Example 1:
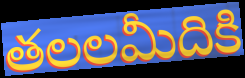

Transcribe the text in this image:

తలలమీదికి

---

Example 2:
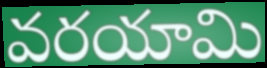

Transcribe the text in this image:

వరయామి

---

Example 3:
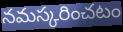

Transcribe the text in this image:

నమస్కరించటం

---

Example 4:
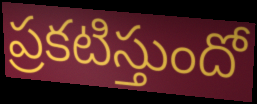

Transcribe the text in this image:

ప్రకటిస్తుందో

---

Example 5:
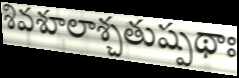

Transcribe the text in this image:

శివశూలాశ్చతుష్పథాః